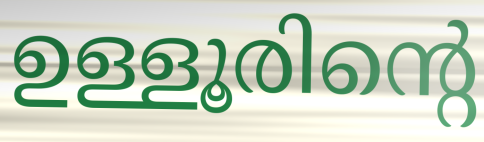
ഉള്ളൂരിന്റെ